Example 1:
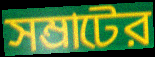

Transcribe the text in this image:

সম্রাটের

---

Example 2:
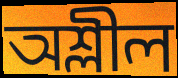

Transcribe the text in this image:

অশ্লীল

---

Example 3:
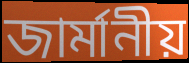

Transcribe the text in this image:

জার্মানীয়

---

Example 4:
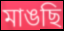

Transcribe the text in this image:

মাঙছি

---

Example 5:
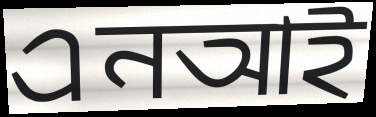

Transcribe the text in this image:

এনআই